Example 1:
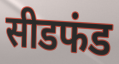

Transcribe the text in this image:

सीडफंड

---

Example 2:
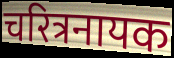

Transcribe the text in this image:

चरित्रनायक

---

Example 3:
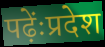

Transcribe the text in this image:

पढ़ेंःप्रदेश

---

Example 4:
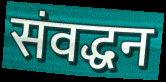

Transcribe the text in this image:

संवद्धन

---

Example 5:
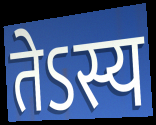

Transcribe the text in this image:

तेऽस्य